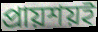
প্রায়শয়ই